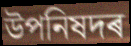
উপনিষদৰ